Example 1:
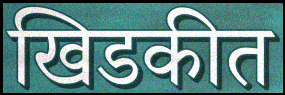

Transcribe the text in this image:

खिडकीत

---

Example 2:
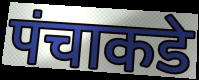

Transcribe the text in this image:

पंचाकडे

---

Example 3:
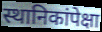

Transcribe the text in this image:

स्थानिकांपेक्षा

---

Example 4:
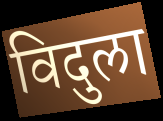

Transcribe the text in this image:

विदुला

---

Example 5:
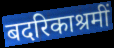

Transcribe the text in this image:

बदरिकाश्रमीं